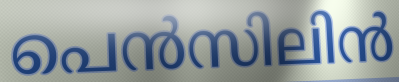
പെൻസിലിൻ